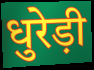
धुरेड़ी